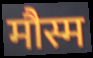
मौस्म